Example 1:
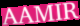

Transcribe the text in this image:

AAMIR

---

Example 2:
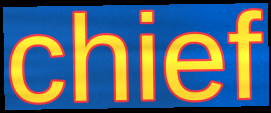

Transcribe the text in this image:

chief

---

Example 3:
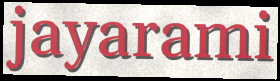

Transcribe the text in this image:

jayarami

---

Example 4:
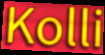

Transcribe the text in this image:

Kolli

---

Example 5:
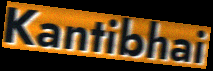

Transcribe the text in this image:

Kantibhai